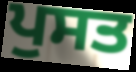
ਪੁਸਤ